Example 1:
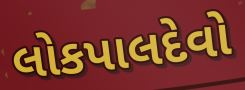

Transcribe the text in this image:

લોકપાલદેવો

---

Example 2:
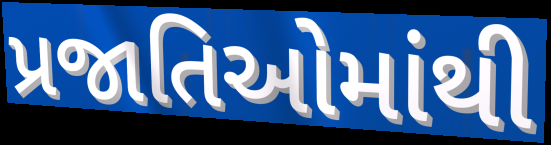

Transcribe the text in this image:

પ્રજાતિઓમાંથી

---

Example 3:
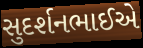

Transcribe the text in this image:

સુદર્શનભાઈએ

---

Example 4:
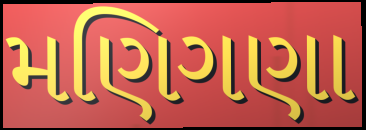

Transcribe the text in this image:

મણિગણા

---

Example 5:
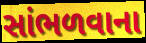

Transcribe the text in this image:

સાંભળવાના